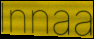
Innaa